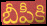
బీపీకి